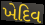
ખેદિવ